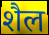
शैल